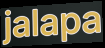
jalapa